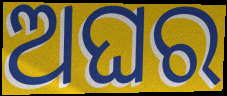
ଅଘର